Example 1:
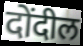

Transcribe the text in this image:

दोंदील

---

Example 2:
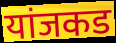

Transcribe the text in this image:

यांजकड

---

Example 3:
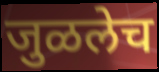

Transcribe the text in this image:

जुळलेच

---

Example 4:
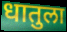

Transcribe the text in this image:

धातुला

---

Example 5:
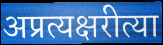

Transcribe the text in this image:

अप्रत्यक्षरीत्या